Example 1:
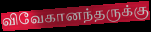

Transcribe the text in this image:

விவேகானந்தருக்கு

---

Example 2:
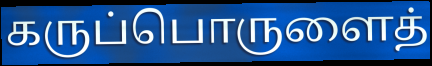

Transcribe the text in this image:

கருப்பொருளைத்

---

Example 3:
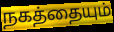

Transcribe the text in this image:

நகத்தையும்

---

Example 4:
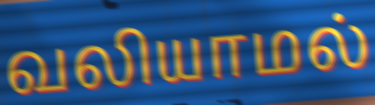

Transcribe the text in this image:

வலியாமல்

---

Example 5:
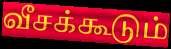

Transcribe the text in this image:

வீசக்கூடும்